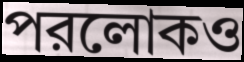
পরলোকও